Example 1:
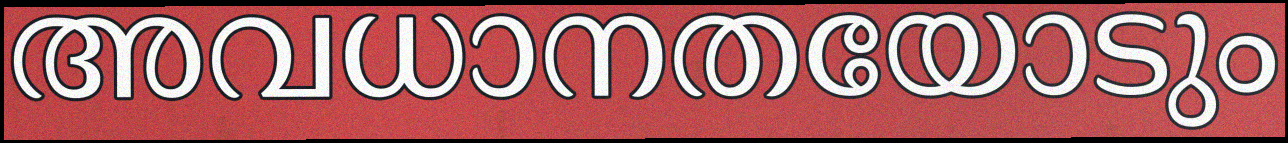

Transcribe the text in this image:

അവധാനതയോടും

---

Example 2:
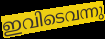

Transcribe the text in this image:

ഇവിടെവന്നു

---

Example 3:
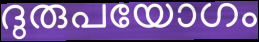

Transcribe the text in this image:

ദുരുപയോഗം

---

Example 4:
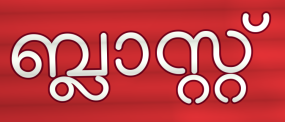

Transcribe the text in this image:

ബ്ലാസ്റ്റ്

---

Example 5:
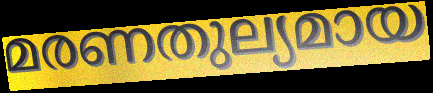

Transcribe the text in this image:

മരണതുല്യമായ